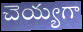
చెయ్యగా